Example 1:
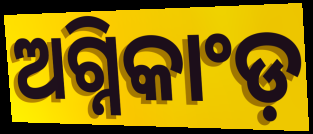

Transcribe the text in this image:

ଅଗ୍ନିକାଂଡ଼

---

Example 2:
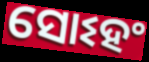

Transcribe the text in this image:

ସୋଽହଂ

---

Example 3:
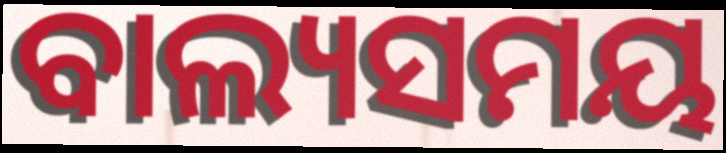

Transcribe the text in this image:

ବାଲ୍ୟସମୟ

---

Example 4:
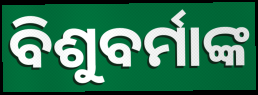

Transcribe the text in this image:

ବିଶୁବର୍ମାଙ୍କ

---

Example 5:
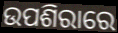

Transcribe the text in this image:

ଉପଶିରାରେ